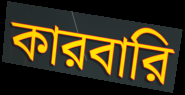
কারবারি